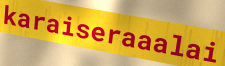
karaiseraaalai